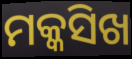
ମକ୍କସିଖ